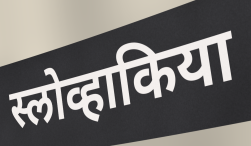
स्लोव्हाकिया